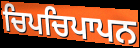
ਚਿਪਚਿਪਾਪਨ